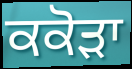
ਕਕੋੜਾ